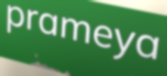
prameya